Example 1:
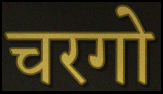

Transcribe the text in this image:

चरगो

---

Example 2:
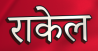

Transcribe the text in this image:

राकेल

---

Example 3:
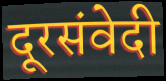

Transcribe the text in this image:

दूरसंवेदी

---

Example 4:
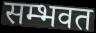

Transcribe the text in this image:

सम्भवत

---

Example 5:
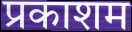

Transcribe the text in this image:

प्रकाशम